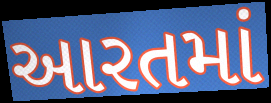
આરતમાં